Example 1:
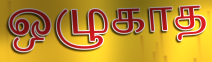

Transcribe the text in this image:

ஒழுகாத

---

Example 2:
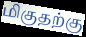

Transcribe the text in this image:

மிகுதற்கு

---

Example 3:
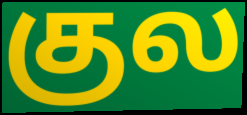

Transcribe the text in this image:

குல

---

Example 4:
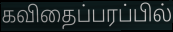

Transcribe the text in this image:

கவிதைப்பரப்பில்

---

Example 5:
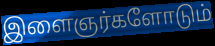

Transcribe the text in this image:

இளைஞர்களோடும்